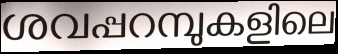
ശവപ്പറമ്പുകളിലെ